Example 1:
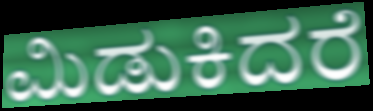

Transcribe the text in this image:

ಮಿಡುಕಿದರೆ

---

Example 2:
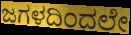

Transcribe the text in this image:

ಜಗಳದಿಂದಲೇ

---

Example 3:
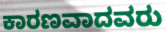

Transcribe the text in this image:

ಕಾರಣವಾದವರು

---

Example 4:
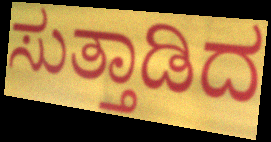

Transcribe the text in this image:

ಸುತ್ತಾಡಿದ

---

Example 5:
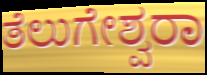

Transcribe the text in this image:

ತೆಲುಗೇಶ್ವರಾ